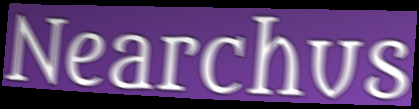
Nearchus